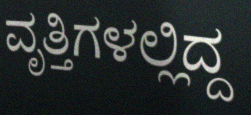
ವೃತ್ತಿಗಳಲ್ಲಿದ್ದ